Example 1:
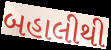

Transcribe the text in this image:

બહાલીથી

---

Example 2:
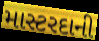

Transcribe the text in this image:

માસ્ટરદાની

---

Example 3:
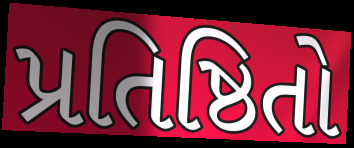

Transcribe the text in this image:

પ્રતિષ્ઠિતો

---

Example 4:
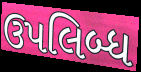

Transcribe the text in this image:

ઉપલિબ્ધ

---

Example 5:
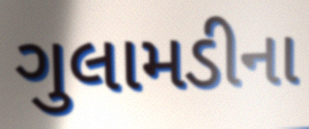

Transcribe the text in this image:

ગુલામડીના